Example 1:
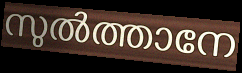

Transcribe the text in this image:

സുൽത്താനേ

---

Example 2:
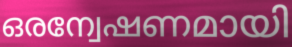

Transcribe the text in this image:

ഒരന്വേഷണമായി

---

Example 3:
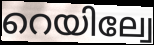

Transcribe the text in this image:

റെയില്വേ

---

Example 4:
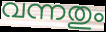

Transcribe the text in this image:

വന്നതും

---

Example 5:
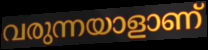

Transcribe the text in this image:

വരുന്നയാളാണ്